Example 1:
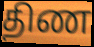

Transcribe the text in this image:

திண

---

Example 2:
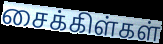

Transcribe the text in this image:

சைக்கிள்கள்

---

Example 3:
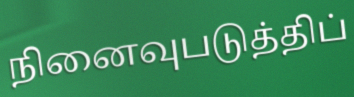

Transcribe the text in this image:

நினைவுபடுத்திப்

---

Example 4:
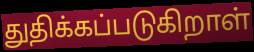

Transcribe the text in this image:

துதிக்கப்படுகிறாள்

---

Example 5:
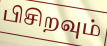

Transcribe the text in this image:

பிசிறவும்